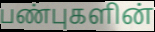
பண்புகளின்